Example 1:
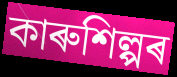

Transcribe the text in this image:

কাৰুশিল্পৰ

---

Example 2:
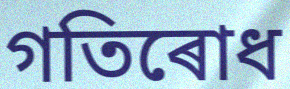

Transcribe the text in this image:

গতিৰোধ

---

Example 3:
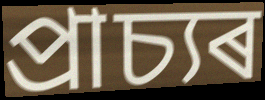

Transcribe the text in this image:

প্ৰাচ্যৰ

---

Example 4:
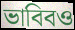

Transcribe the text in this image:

ভাবিবও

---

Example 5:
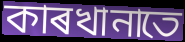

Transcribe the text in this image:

কাৰখানাতে